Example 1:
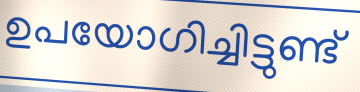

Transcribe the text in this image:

ഉപയോഗിച്ചിട്ടുണ്ട്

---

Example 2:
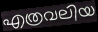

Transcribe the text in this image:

എത്രവലിയ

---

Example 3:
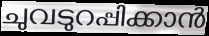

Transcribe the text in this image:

ചുവടുറപ്പിക്കാൻ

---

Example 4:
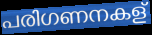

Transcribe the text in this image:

പരിഗണനകള്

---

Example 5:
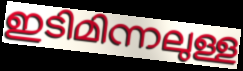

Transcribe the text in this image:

ഇടിമിന്നലുള്ള